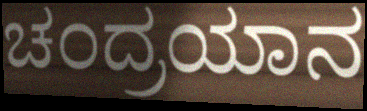
ಚಂದ್ರಯಾನ